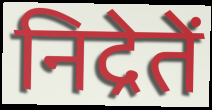
निद्रेतें